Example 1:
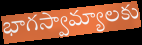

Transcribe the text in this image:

భాగస్వామ్యాలకు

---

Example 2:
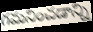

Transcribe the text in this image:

గమనించడాన్ని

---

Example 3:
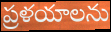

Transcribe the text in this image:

ప్రళయాలను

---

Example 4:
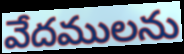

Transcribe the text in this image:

వేదములను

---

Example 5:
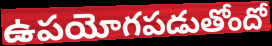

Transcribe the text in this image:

ఉపయోగపడుతోందో